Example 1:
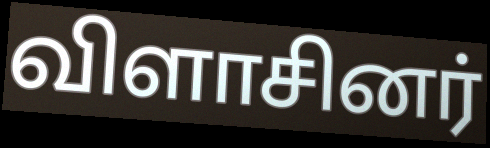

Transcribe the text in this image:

விளாசினர்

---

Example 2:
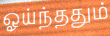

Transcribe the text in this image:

ஓய்ந்ததும்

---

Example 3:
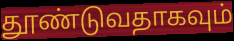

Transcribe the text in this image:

தூண்டுவதாகவும்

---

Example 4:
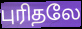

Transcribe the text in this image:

புரிதலே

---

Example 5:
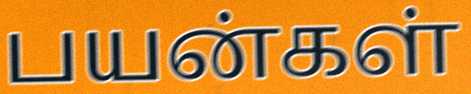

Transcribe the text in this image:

பயன்கள்